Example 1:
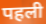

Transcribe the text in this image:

पहली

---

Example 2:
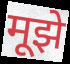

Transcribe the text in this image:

मूझे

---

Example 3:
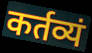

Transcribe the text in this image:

कर्तव्यं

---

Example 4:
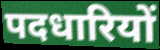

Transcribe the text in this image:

पदधारियों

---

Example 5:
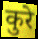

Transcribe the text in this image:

कुरे